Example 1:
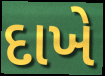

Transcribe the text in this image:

દાખે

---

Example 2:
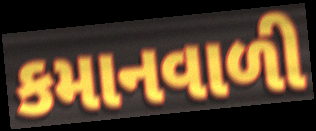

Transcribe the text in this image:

કમાનવાળી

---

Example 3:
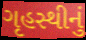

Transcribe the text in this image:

ગૃહસ્થીનું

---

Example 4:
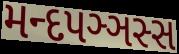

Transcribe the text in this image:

મન્દપઞ્ઞસ્સ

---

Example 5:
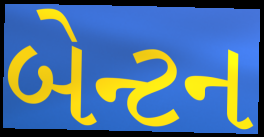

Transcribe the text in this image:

બેન્ટન